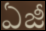
ఏజీ